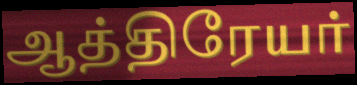
ஆத்திரேயர்